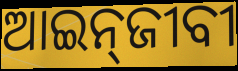
ଆଇନ୍‌ଜୀବୀ